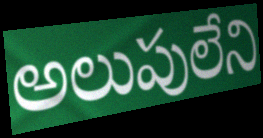
అలుపులేని